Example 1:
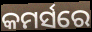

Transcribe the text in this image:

କମର୍ସରେ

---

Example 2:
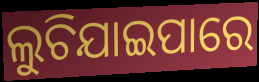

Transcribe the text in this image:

ଲୁଚିଯାଇପାରେ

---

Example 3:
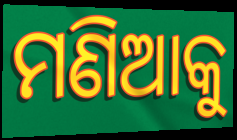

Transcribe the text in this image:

ମଣିଆକୁ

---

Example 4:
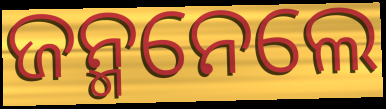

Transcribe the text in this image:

ଜନ୍ମନେଲେ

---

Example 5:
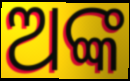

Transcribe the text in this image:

ଅଙ୍କ